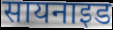
सायनाइड